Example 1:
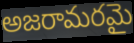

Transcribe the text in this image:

అజరామరమై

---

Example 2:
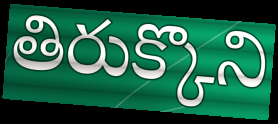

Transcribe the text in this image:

తిరుక్కొని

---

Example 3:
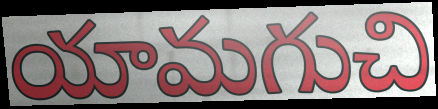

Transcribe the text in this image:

యామగుచి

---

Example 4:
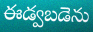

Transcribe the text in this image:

ఈడ్వబడెను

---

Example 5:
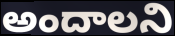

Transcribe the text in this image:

అందాలని